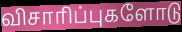
விசாரிப்புகளோடு